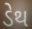
ડેથ